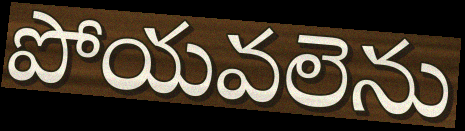
పోయవలెను